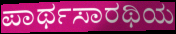
ಪಾರ್ಥಸಾರಥಿಯ